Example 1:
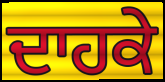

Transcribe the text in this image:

ਦਾਹਕੇ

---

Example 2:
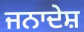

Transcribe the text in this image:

ਜਨਾਦੇਸ਼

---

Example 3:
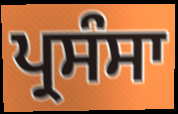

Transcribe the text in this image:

ਪ੍ਰਸੰਸਾ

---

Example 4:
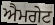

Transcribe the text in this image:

ਐਮਗੇਟ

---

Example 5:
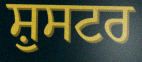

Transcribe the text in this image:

ਸ਼ੁਸਟਰ